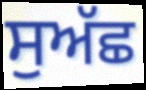
ਸੁਅੱਛ